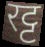
रट्ट